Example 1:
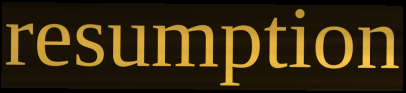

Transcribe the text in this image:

resumption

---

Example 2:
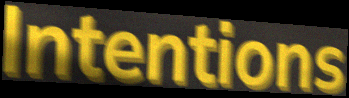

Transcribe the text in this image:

Intentions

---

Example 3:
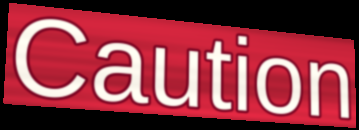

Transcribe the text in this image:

Caution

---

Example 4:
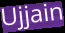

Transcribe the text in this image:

Ujjain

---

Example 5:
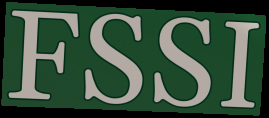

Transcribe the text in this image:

FSSI